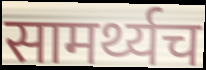
सामर्थ्यच